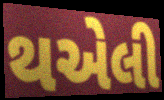
થએલી